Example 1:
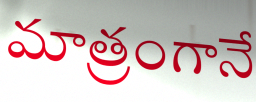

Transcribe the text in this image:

మాత్రంగానే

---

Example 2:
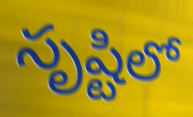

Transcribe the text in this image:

సృష్టిలో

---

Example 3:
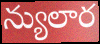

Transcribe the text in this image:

న్యులార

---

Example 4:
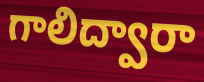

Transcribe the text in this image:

గాలిద్వారా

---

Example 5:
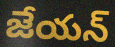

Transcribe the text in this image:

జేయన్